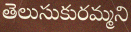
తెలుసుకురమ్మని